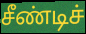
சீண்டிச்